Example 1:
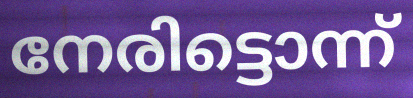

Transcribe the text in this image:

നേരിട്ടൊന്ന്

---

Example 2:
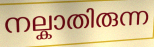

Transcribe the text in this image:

നല്കാതിരുന്ന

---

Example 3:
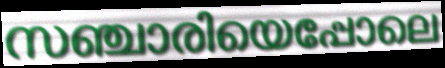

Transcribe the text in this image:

സഞ്ചാരിയെപ്പോലെ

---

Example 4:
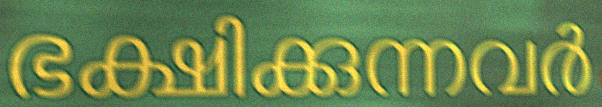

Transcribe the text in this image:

ഭക്ഷിക്കുന്നവർ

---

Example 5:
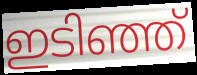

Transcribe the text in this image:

ഇടിഞ്ഞ്